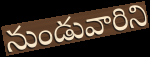
నుండువారిని